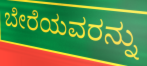
ಬೇರೆಯವರನ್ನು